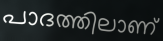
പാദത്തിലാണ്